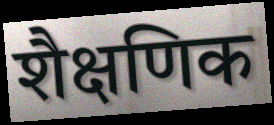
शैक्षणिक